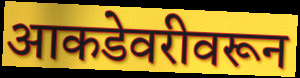
आकडेवरीवरून